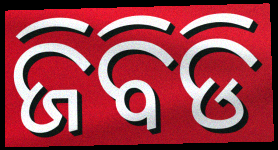
ଜିବିଡି